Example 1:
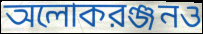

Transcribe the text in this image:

অলোকরঞ্জনও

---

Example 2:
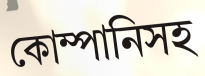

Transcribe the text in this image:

কোম্পানিসহ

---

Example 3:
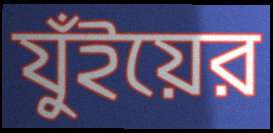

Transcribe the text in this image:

যুঁইয়ের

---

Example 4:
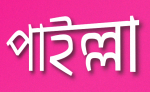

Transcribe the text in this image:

পাইল্লা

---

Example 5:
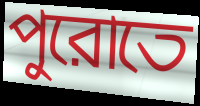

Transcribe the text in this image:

পুরোতে